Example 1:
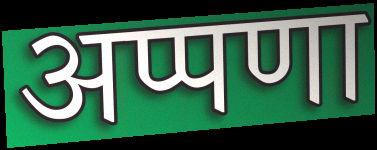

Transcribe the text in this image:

अप्पणा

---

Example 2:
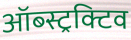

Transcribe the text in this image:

ऑब्स्ट्रक्टिव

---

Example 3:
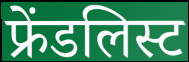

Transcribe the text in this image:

फ्रेंडलिस्ट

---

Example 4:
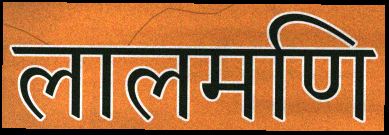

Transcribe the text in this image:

लालमणि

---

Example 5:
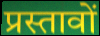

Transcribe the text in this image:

प्रस्‍तावों